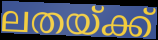
ലതയ്ക്ക്